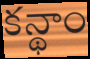
కన్థాం